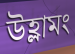
উহ্লামং